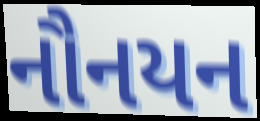
નૌનયન